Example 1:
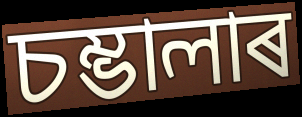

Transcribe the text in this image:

চম্ভালাৰ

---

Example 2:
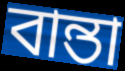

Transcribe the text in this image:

বান্তা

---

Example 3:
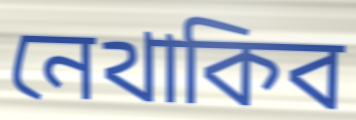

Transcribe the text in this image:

নেথাকিব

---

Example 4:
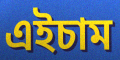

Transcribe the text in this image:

এইচাম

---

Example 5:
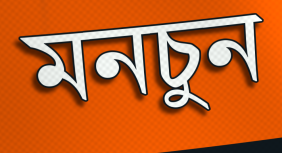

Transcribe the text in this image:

মনচুন